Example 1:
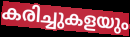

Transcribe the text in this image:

കരിച്ചുകളയും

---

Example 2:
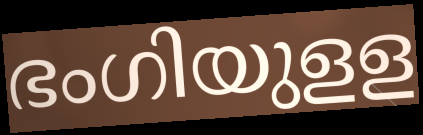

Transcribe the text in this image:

ഭംഗിയുളള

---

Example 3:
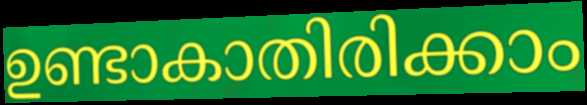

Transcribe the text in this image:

ഉണ്ടാകാതിരിക്കാം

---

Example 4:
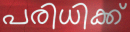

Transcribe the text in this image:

പരിധിക്ക്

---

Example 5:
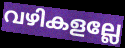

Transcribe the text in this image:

വഴികളല്ലേ